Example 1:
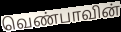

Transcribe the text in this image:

வெண்பாவின்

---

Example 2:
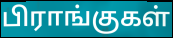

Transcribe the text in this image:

பிராங்குகள்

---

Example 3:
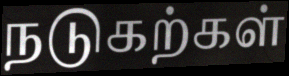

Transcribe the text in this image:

நடுகற்கள்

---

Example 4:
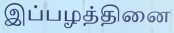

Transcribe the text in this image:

இப்பழத்தினை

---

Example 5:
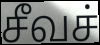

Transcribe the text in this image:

சீவச்